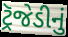
ટ્રૅજેડીનું